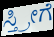
ಸ್ತ್ರೀಗೆ